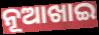
ନୂଆଖାଇ